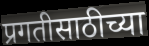
प्रगतीसाठीच्या